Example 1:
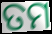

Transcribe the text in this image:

ତମ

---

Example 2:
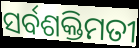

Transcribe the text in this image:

ସର୍ବଶକ୍ତିମତୀ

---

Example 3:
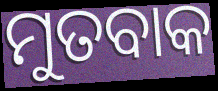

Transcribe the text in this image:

ମୁତବାକ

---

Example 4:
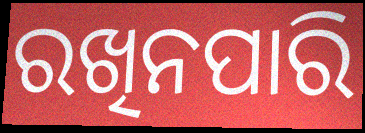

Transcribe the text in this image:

ରଖିନପାରି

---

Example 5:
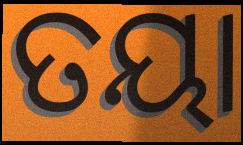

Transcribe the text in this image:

ତୟା